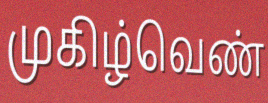
முகிழ்வெண்